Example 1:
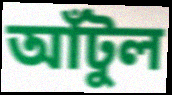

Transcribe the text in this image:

আঁটুল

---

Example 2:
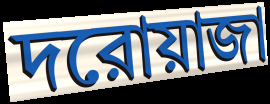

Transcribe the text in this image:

দরোয়াজা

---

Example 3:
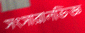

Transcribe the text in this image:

সংসারানভিজ্ঞ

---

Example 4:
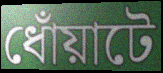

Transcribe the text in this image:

ধোঁয়াটে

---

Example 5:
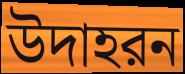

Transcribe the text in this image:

উদাহরন